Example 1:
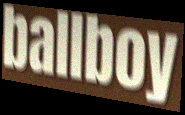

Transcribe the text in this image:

ballboy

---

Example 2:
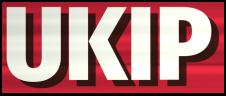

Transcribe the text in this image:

UKIP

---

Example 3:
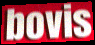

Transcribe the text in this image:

bovis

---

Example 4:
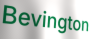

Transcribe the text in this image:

Bevington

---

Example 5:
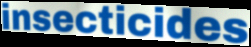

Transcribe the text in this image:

insecticides